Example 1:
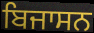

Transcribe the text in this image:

ਬਿਜਾਸਨ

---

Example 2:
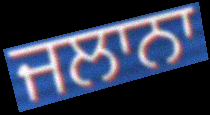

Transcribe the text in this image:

ਜਲਾਨਾ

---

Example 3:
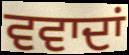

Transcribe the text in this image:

ਵਵਾਦਾਂ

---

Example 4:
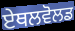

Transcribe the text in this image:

ਏਥਲਵੋਲਡ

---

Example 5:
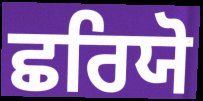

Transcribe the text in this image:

ਛਰਿਯੋ